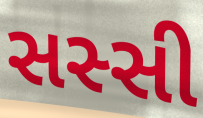
સસ્સી